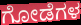
ಗೋಡೆಗಳ